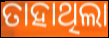
ତାହାଥିଲା